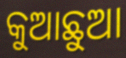
କୁଆଛୁଆ